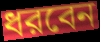
ধরবেন